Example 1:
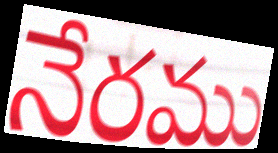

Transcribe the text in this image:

నేరము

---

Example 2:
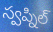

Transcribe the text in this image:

స్వప్నిల్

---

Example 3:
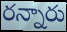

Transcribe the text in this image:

రన్నారు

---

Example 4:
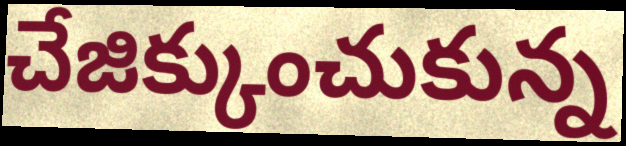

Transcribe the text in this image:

చేజిక్కుంచుకున్న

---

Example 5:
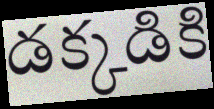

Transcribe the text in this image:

డక్కడికి